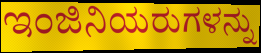
ಇಂಜಿನಿಯರುಗಳನ್ನು